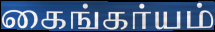
கைங்கர்யம்